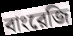
বাংরেজি